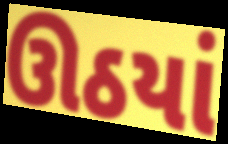
ઊઠયાં